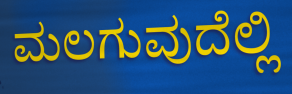
ಮಲಗುವುದೆಲ್ಲಿ